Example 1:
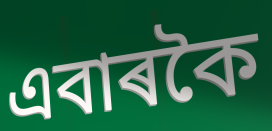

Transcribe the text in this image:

এবাৰকৈ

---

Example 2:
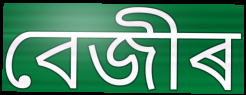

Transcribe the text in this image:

বেজীৰ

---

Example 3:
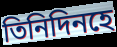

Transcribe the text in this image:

তিনিদিনহে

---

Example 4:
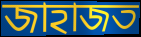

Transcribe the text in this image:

জাহাজত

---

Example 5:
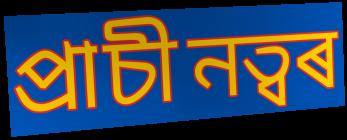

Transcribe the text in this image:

প্ৰাচীনত্বৰ